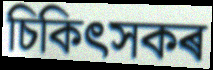
চিকিৎসকৰ